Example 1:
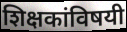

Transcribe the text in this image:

शिक्षकांविषयी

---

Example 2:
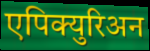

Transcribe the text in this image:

एपिक्युरिअन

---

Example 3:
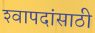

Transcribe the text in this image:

श्वापदांसाठी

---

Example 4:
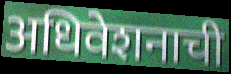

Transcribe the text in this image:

अधिवेशनाची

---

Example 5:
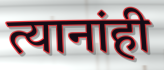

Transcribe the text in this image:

त्यानांही